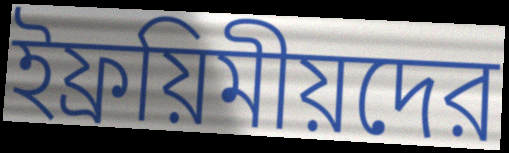
ইফ্রয়িমীয়দের